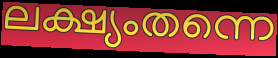
ലക്ഷ്യംതന്നെ